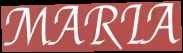
MARIA